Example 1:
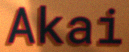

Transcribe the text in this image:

Akai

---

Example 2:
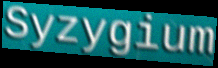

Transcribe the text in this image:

Syzygium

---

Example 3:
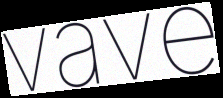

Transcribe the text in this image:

vave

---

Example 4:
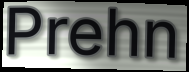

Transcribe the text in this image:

Prehn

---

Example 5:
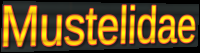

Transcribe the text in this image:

Mustelidae